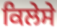
ਕਿਲੇਸੇ